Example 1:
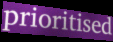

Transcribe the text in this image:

prioritised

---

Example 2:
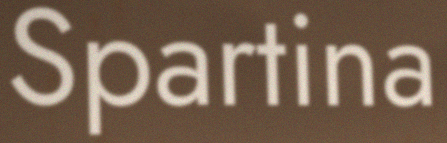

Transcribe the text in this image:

Spartina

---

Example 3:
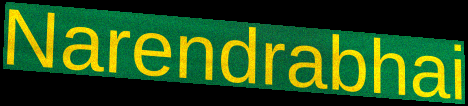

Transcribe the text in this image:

Narendrabhai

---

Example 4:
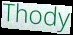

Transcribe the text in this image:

Thody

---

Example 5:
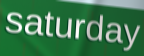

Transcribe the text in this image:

saturday